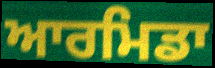
ਆਰਮਿਡਾ